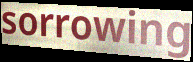
sorrowing